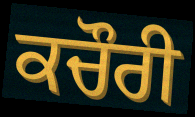
ਕਚੌਰੀ